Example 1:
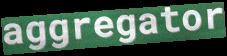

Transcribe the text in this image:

aggregator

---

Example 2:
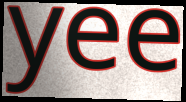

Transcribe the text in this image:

yee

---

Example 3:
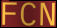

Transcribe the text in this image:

FCN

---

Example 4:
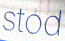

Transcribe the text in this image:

stod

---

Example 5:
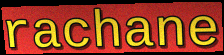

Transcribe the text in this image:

rachane